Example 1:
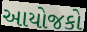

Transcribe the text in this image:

આયોજકો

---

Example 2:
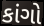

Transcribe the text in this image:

કાંગો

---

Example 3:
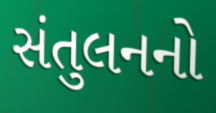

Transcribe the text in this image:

સંતુલનનો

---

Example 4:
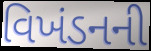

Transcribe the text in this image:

વિખંડનની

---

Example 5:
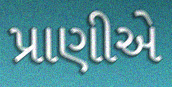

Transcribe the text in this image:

પ્રાણીએ